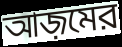
আজ়মের